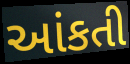
આંકતી